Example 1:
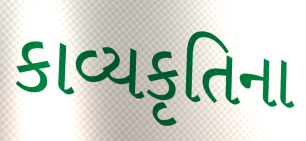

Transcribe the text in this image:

કાવ્યકૃતિના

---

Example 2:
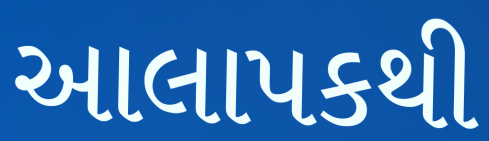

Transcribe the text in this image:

આલાપકથી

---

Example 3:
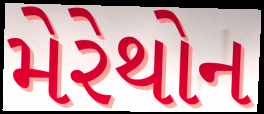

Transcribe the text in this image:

મેરેથોન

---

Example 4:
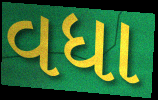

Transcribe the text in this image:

વધા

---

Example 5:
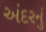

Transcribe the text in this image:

અંદરનું